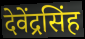
देवेंद्रसिंह